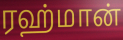
ரஹ்மான்